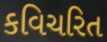
કવિચરિત